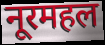
नूरमहल